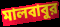
মালবাবুর